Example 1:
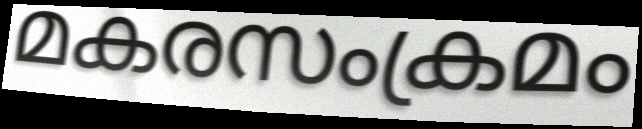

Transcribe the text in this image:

മകരസംക്രമം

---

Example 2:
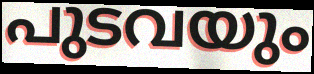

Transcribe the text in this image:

പുടവയും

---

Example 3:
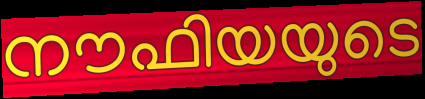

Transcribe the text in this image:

നൗഫിയയുടെ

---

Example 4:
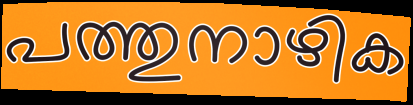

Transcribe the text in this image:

പത്തുനാഴിക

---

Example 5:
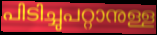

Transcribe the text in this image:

പിടിച്ചുപറ്റാനുള്ള